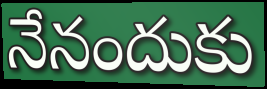
నేనందుకు